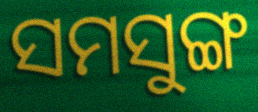
ସମସୁଙ୍ଗ